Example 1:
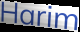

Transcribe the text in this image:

Harim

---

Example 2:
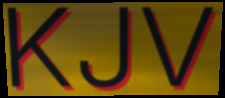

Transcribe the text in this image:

KJV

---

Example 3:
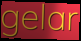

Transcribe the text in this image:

gelar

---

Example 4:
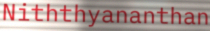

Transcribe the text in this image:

Niththyananthan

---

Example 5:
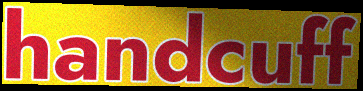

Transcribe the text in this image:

handcuff